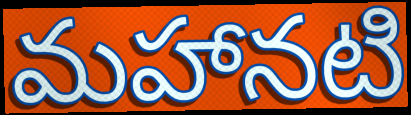
మహానటి